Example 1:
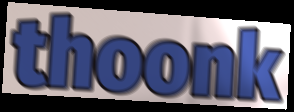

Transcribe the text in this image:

thoonk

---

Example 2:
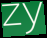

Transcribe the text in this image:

zy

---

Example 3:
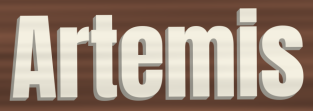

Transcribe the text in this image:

Artemis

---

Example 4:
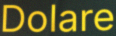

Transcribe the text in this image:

Dolare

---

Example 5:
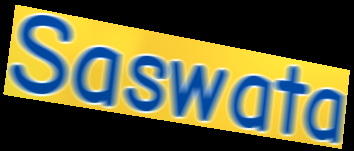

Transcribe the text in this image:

Saswata